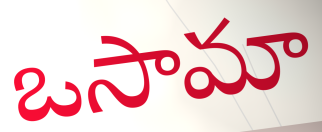
ఒసామా